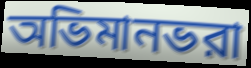
অভিমানভরা